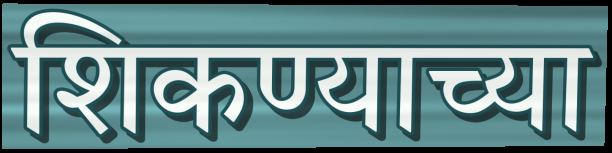
शिकण्याच्या